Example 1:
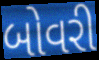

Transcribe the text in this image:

બોવરી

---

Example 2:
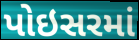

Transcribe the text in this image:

પોઇસરમાં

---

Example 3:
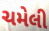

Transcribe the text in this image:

ચમેલી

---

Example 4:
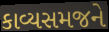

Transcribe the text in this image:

કાવ્યસમજને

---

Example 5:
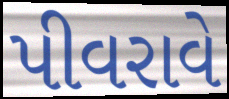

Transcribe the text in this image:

પીવરાવે